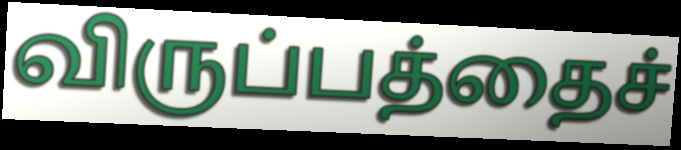
விருப்பத்தைச்